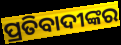
ପ୍ରତିବାଦୀଙ୍କର